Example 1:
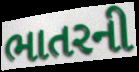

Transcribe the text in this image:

ભાતરની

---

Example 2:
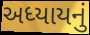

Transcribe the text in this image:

અધ્યાયનું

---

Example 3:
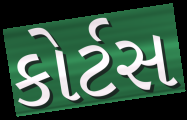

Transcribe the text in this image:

કોર્ટસ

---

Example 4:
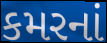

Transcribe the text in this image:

કમરનાં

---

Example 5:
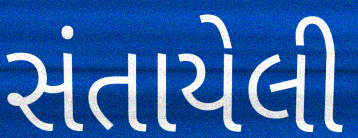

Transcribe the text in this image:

સંતાયેલી